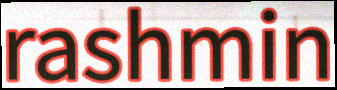
rashmin